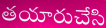
తయారుచేసి